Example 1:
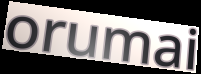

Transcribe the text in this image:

orumai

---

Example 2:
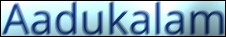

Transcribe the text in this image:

Aadukalam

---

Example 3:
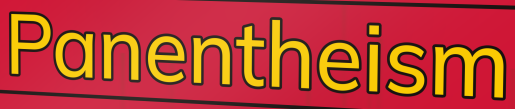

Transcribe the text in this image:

Panentheism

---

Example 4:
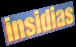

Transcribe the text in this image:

insidias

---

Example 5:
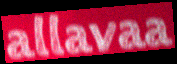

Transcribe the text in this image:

allavaa